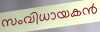
സംവിധായകൻ